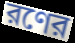
রণের